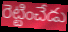
రెట్టించేడు